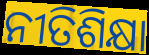
ନୀତିଶିକ୍ଷା